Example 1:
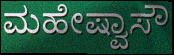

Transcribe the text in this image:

ಮಹೇಷ್ವಾಸೌ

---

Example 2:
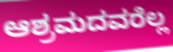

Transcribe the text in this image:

ಆಶ್ರಮದವರೆಲ್ಲ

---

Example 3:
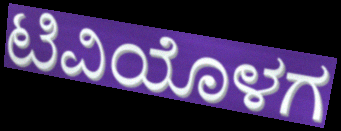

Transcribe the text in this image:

ಟಿವಿಯೊಳಗ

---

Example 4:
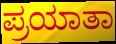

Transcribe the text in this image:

ಪ್ರಯಾತಾ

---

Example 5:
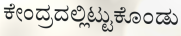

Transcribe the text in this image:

ಕೇಂದ್ರದಲ್ಲಿಟ್ಟುಕೊಂಡು